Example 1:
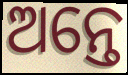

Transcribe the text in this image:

ଅନ୍ତେ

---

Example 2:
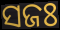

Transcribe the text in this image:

ସଜଃ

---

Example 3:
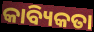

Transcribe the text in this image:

କାବ୍ୟିକତା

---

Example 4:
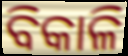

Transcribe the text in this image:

ବିକାଳି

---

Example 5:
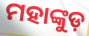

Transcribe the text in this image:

ମହାଙ୍କୁଡ଼